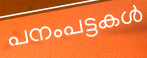
പനംപട്ടകൾ